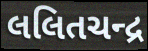
લલિતચન્દ્ર